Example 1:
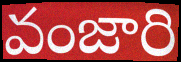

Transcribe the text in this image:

వంజారి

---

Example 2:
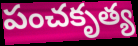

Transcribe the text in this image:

పంచకృత్య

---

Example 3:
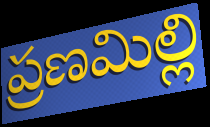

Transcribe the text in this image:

ప్రణమిల్లి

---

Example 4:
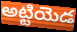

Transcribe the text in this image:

అట్టియెడ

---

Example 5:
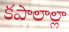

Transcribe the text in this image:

కపాలాల్లా